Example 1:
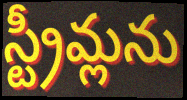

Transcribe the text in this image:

స్ట్రీమ్లను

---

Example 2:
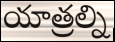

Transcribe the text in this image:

యాత్రల్ని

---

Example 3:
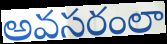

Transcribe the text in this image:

అవసరంలా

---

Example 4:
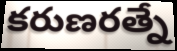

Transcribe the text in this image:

కరుణరత్నే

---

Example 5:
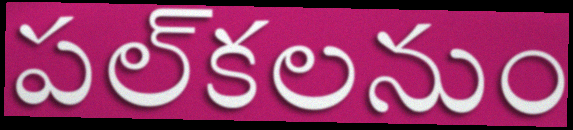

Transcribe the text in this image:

పల్‌కలనుం